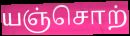
யஞ்சொற்